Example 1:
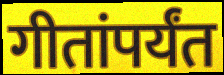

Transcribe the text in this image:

गीतांपर्यंत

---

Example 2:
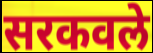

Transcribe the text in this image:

सरकवले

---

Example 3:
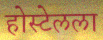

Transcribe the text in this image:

होस्टेलला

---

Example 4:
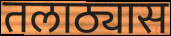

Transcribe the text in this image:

तलाठ्यास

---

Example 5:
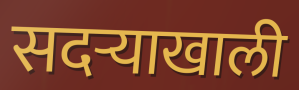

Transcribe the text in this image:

सदऱ्याखाली